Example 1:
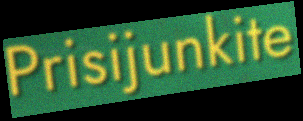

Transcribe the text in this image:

Prisijunkite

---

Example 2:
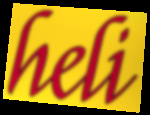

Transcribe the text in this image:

heli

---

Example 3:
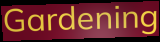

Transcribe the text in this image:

Gardening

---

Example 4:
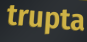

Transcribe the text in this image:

trupta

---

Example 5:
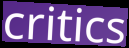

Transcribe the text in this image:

critics